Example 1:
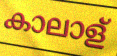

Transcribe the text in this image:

കാലാള്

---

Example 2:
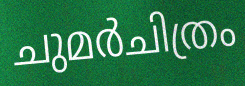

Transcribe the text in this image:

ചുമർചിത്രം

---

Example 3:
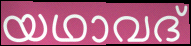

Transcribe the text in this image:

യഥാവദ്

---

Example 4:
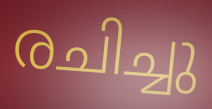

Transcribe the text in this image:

രചിച്ചു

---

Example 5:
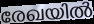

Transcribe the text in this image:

രേഖയിൽ